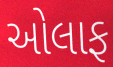
ઓલાફ